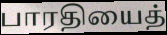
பாரதியைத்